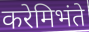
करेमिभंते